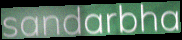
sandarbha